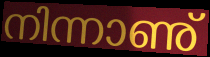
നിന്നാണു്